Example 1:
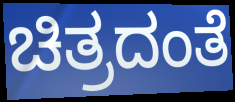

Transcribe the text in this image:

ಚಿತ್ರದಂತೆ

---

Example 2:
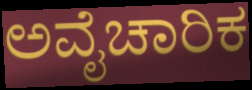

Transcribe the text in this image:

ಅವೈಚಾರಿಕ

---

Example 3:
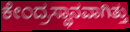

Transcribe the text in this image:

ಕೇಂದ್ರಸ್ಥಾನವಾಗಿತ್ತು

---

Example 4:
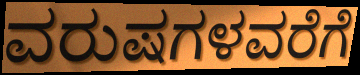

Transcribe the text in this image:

ವರುಷಗಳವರೆಗೆ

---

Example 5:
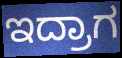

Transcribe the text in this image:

ಇದ್ರಾಗ